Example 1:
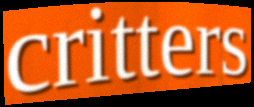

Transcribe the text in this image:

critters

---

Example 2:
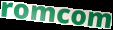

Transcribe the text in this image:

romcom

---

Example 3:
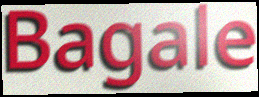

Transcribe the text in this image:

Bagale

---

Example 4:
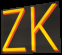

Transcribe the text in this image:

ZK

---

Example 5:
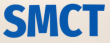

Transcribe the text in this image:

SMCT